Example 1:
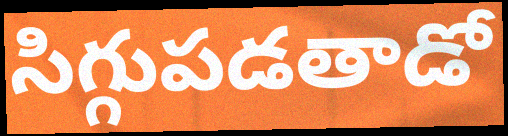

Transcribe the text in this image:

సిగ్గుపడతాడో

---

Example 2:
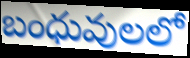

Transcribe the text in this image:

బంధువులలో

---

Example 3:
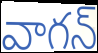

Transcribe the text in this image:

వాగన్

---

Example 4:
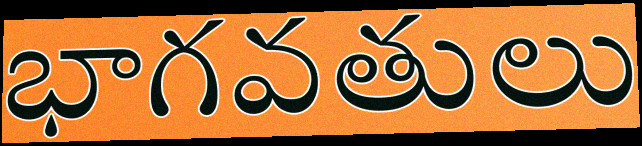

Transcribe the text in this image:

భాగవతులు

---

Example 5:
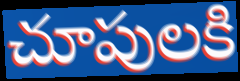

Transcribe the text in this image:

చూపులకి